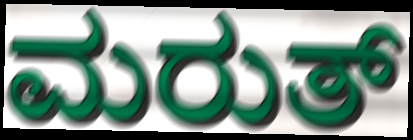
ಮರುತ್